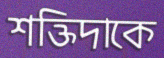
শক্তিদাকে